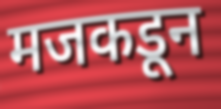
मजकडून